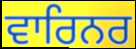
ਵਾਰਿਨਰ